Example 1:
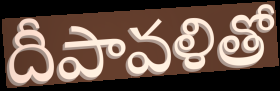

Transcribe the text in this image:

దీపావళితో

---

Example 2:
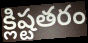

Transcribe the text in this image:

క్లిష్టతరం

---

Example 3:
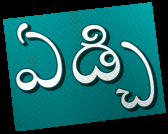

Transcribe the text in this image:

ఏడ్చి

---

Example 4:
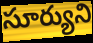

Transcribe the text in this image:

సూర్యుని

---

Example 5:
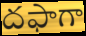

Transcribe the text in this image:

దఫాగా